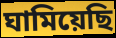
ঘামিয়েছি